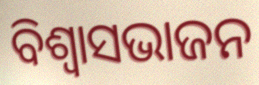
ବିଶ୍ଵାସଭାଜନ